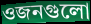
ওজনগুলো